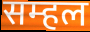
सम्हल